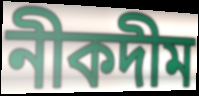
নীকদীম